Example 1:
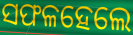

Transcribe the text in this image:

ସଫଳହେଲେ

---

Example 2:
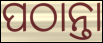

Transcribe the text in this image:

ପଠାନ୍ତା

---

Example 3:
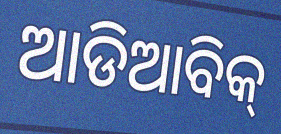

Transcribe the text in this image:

ଆଡିଆବିକ୍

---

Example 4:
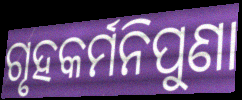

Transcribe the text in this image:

ଗୃହକର୍ମନିପୁଣା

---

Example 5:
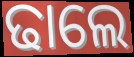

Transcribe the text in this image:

ଢାଲେ